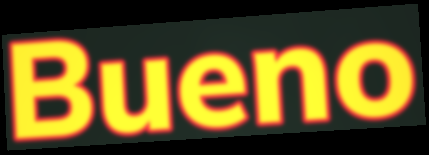
Bueno